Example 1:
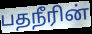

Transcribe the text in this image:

பதநீரின்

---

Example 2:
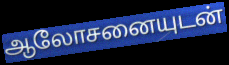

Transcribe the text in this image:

ஆலோசனையுடன்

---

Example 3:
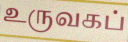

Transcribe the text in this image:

உருவகப்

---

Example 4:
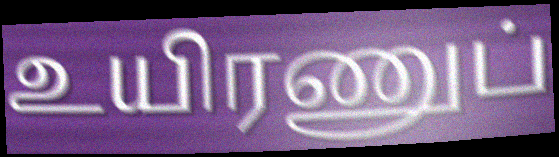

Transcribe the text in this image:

உயிரணுப்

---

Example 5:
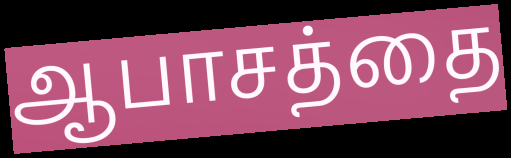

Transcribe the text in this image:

ஆபாசத்தை